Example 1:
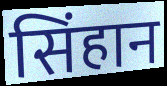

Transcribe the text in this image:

सिंहान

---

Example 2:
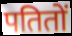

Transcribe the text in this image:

पतितों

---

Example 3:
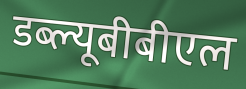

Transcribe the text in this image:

डब्ल्यूबीबीएल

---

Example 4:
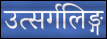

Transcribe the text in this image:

उत्सर्गलिङ्ग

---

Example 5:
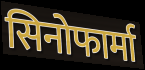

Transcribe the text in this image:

सिनोफार्मा